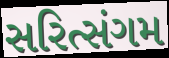
સરિત્સંગમ